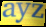
ayz